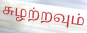
சுழற்றவும்